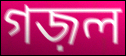
গজ়ল